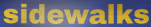
sidewalks